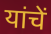
यांचें